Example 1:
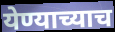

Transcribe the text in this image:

येण्याच्याच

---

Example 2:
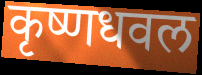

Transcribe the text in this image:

कृष्णधवल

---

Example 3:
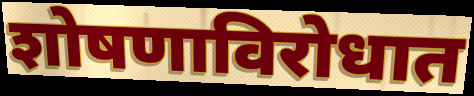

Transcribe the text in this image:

शोषणाविरोधात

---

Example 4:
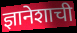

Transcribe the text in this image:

ज्ञानेशाची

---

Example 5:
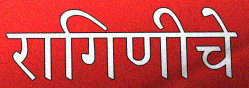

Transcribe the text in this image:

रागिणीचे